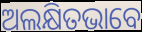
ଅଲକ୍ଷିତଭାବେ